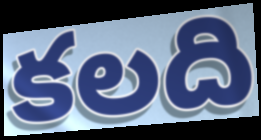
కలది